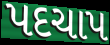
પદચાપ